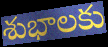
శుభాలకు